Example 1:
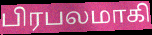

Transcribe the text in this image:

பிரபலமாகி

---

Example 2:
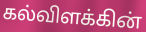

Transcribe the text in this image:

கல்விளக்கின்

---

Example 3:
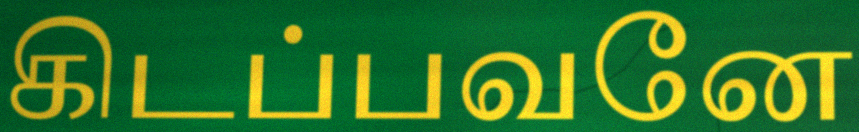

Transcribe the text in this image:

கிடப்பவனே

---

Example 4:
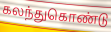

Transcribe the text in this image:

கலந்துகொண்டு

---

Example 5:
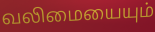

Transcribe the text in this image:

வலிமையையும்